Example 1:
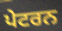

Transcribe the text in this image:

ਪੇਟਰਨ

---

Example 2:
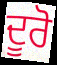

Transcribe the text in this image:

ਦੂਰੋ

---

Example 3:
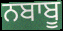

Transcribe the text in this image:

ਨਬਾਬੂ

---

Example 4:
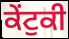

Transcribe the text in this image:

ਕੇਂਟੁਕੀ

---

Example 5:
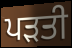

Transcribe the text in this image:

ਪੜਤੀ